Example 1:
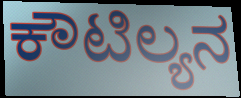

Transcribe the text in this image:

ಕೌಟಿಲ್ಯನ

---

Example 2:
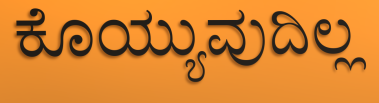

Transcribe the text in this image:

ಕೊಯ್ಯುವುದಿಲ್ಲ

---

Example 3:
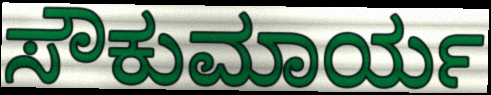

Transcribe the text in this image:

ಸೌಕುಮಾರ್ಯ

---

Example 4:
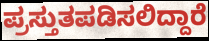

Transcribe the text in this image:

ಪ್ರಸ್ತುತಪಡಿಸಲಿದ್ದಾರೆ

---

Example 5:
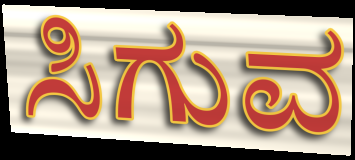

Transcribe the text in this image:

ಸಿಗುವ